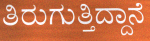
ತಿರುಗುತ್ತಿದ್ದಾನೆ